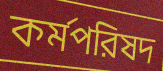
কর্মপরিষদ